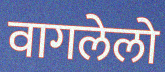
वागलेलो